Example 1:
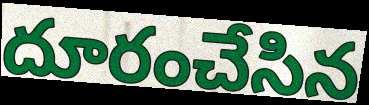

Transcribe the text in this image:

దూరంచేసిన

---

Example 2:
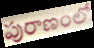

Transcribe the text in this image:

పురాణంలో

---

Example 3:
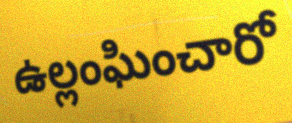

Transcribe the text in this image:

ఉల్లంఘించారో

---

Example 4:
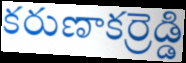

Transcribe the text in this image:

కరుణాకర్రెడ్డి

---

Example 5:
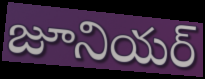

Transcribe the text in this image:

జూనియర్